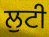
ਲੁਟੀ